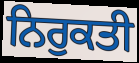
ਨਿਰੁਕਤੀ